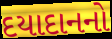
દયાદાનનો